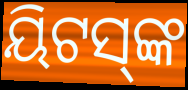
ୟିଟସ୍‌ଙ୍କ